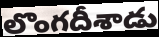
లొంగదీశాడు